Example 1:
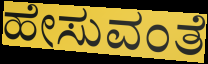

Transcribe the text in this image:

ಹೇಸುವಂತೆ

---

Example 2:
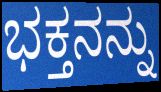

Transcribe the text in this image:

ಭಕ್ತನನ್ನು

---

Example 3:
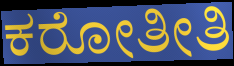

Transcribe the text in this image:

ಕರೋತೀತಿ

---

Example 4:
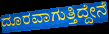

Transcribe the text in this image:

ದೂರವಾಗುತ್ತಿದ್ದೇನೆ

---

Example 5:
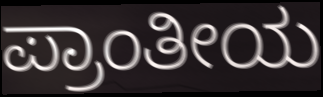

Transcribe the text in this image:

ಪ್ರಾಂತೀಯ